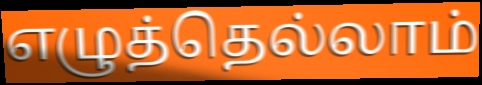
எழுத்தெல்லாம்